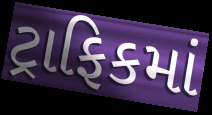
ટ્રાફિકમાં